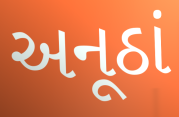
અનૂઠાં